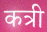
कत्री